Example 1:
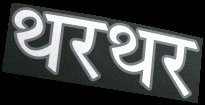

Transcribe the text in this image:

थरथर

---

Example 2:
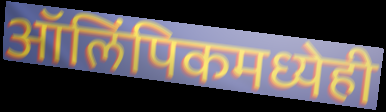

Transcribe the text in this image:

ऑलिंपिकमध्येही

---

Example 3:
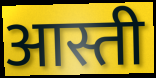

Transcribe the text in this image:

आस्ती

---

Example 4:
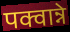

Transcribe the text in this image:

पक्वान्ने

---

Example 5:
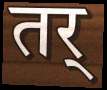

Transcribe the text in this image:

तर्